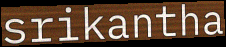
srikantha